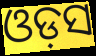
ଓଡ଼ସ